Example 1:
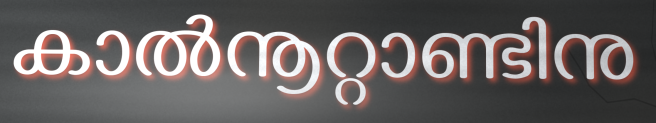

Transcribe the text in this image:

കാൽനൂറ്റാണ്ടിനു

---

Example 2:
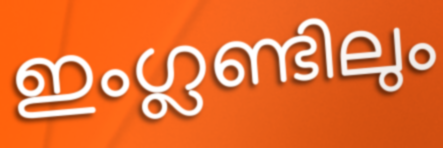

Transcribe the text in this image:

ഇംഗ്ലണ്ടിലും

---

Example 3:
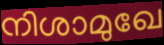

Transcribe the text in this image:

നിശാമുഖേ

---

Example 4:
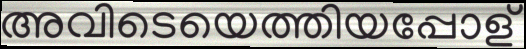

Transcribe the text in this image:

അവിടെയെത്തിയപ്പോള്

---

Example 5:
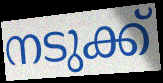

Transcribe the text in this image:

നടുക്ക്